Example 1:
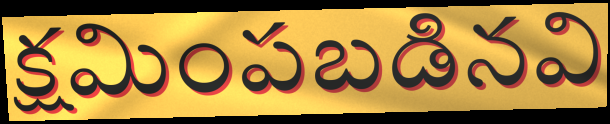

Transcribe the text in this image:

క్షమింపబడినవి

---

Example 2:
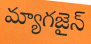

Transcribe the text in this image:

మ్యాగజైన్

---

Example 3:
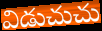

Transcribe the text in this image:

విడుచుచు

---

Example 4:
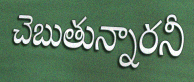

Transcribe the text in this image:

చెబుతున్నారనీ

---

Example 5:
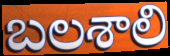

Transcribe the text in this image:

బలశాలి